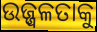
ଉଜ୍ଜ୍ୱଳତାକୁ